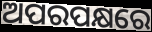
ଅପରପକ୍ଷରେ